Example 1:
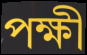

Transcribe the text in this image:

পক্ষী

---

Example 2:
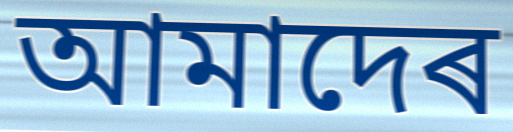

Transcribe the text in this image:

আমাদেৰ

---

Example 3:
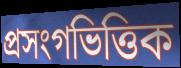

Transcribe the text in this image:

প্ৰসংগভিত্তিক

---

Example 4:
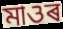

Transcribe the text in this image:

মাওৰ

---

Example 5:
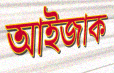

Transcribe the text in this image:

আইজাক